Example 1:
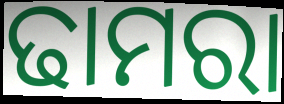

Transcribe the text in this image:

ଢାମରା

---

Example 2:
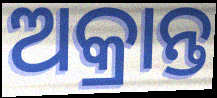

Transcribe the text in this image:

ଅକ୍ରାନ୍ତ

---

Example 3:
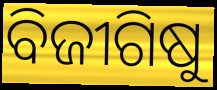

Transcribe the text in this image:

ବିଜୀଗିଷୁ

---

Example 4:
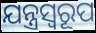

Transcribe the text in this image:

ଯନ୍ତ୍ରସ୍ୱରୂପ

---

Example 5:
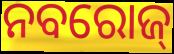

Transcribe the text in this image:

ନବରୋଜ୍